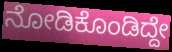
ನೋಡಿಕೊಂಡಿದ್ದೇ